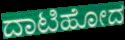
ದಾಟಿಹೋದ